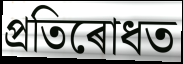
প্ৰতিৰোধত